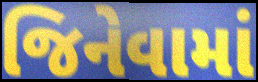
જિનેવામાં